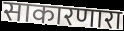
साकारणारा